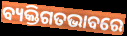
ବ୍ୟକ୍ତିଗତଭାବରେ